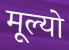
मूल्यो